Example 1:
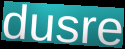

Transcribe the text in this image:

dusre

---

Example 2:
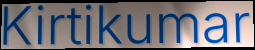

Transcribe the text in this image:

Kirtikumar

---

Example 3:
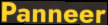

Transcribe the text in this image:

Panneer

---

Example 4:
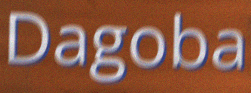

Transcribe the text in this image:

Dagoba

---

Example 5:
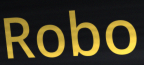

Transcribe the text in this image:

Robo